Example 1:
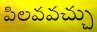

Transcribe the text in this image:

పిలవవచ్చు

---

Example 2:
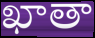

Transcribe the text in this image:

ఖాతా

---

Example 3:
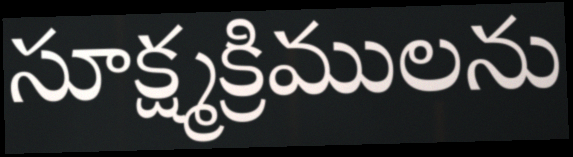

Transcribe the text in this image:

సూక్ష్మక్రిములను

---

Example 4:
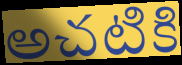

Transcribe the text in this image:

అచటికి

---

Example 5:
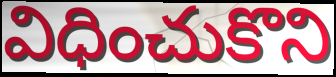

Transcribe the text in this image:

విధించుకొని